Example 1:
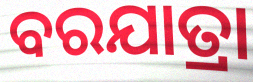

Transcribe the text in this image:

ବରଯାତ୍ରା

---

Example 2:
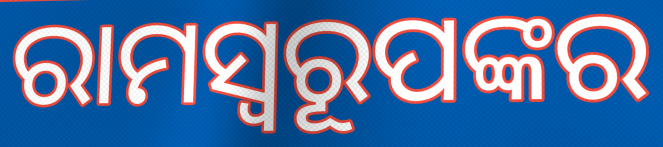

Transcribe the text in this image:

ରାମସ୍ୱରୂପଙ୍କର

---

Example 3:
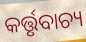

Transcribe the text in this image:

କର୍ତ୍ତୃବାଚ୍ୟ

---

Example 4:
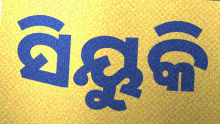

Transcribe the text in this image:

ସିୟୁକି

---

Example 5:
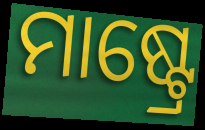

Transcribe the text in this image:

ମାଷ୍ଟ୍ରେ